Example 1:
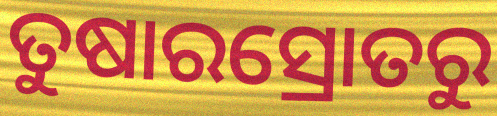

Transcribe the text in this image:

ତୁଷାରସ୍ରୋତରୁ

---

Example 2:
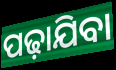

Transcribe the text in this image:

ପଢ଼ାଯିବା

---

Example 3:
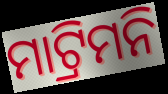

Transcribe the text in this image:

ମାଟ୍ରିମନି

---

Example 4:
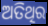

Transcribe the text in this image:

ଅତିଥିର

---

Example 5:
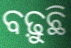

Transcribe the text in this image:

ବଢ଼ୁଛି